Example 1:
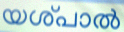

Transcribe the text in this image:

യശ്പാൽ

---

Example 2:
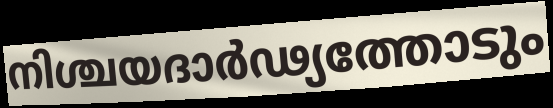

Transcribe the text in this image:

നിശ്ചയദാർഢ്യത്തോടും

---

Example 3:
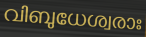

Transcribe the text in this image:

വിബുധേശ്വരാഃ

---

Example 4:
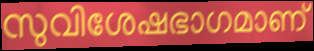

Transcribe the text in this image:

സുവിശേഷഭാഗമാണ്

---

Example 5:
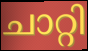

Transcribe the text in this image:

ചാറ്റി